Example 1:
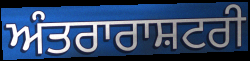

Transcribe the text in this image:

ਅੰਤਰਾਰਾਸ਼ਟਰੀ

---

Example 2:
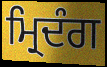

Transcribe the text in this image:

ਮ੍ਰਿਦੰਗ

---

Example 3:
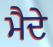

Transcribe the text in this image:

ਮੈਦੇ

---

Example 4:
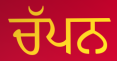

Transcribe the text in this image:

ਚੱਪਨ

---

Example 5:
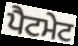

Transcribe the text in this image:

ਪੈਟਮੇਟ